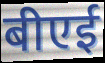
बीएई